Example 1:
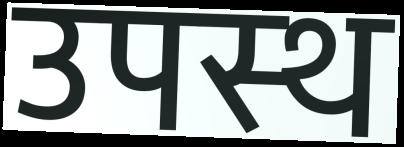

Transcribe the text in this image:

उपस्थ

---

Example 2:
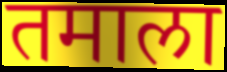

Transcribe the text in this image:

तमाला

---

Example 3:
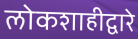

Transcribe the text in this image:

लोकशाहीद्वारे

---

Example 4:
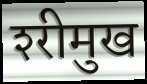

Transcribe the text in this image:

श्रीमुख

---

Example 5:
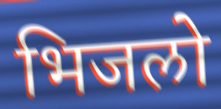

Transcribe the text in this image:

भिजलो